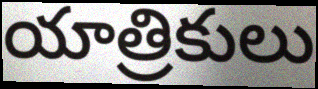
యాత్రికులు